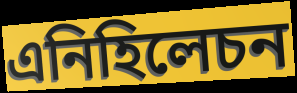
এনিহিলেচন